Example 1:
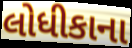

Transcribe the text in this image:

લોધીકાના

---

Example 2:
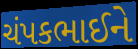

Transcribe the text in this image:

ચંપકભાઈને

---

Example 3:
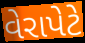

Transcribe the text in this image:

વેરાપેટે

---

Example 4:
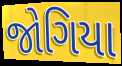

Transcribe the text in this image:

જોગિયા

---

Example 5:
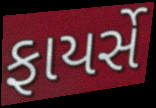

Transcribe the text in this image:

ફાયર્સે